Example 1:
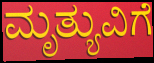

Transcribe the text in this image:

ಮೃತ್ಯುವಿಗೆ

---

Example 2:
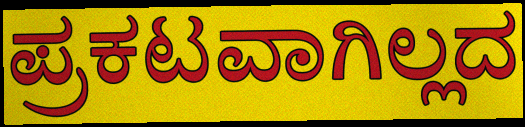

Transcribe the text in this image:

ಪ್ರಕಟವಾಗಿಲ್ಲದ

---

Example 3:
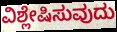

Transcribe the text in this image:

ವಿಶ್ಲೇಷಿಸುವುದು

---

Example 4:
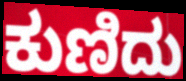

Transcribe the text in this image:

ಕುಣಿದು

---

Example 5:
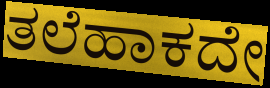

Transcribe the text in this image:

ತಲೆಹಾಕದೇ